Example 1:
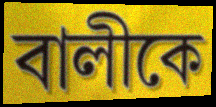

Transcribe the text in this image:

বালীকে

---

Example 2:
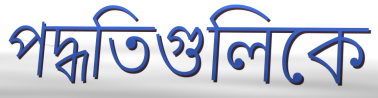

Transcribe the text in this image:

পদ্ধতিগুলিকে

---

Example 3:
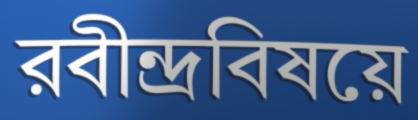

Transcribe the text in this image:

রবীন্দ্রবিষয়ে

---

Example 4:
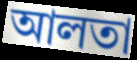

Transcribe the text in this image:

আলতা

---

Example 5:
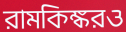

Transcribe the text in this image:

রামকিঙ্করও